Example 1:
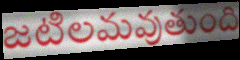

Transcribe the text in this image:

జటిలమవుతుంది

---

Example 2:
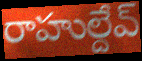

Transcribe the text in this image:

రాహుల్దేవ్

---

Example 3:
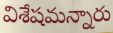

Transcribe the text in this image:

విశేషమన్నారు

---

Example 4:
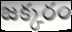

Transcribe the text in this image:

జక్కరం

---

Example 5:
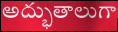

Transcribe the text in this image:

అద్భుతాలుగా